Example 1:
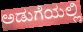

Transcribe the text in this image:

ಅಡುಗೆಯಲ್ಲಿ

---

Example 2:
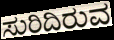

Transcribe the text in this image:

ಸುರಿದಿರುವ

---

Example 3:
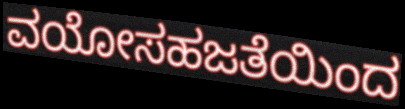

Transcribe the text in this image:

ವಯೋಸಹಜತೆಯಿಂದ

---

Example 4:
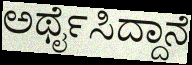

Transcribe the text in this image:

ಅರ್ಥೈಸಿದ್ದಾನೆ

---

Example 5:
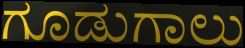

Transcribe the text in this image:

ಗೂಡುಗಾಲು